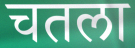
चतला